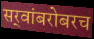
सर्वांबरोबरच